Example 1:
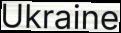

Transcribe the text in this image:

Ukraine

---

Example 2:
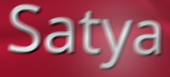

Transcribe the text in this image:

Satya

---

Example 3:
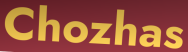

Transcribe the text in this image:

Chozhas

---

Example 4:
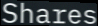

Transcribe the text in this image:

Shares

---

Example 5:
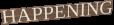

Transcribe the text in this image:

HAPPENING